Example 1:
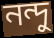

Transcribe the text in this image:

নন্দু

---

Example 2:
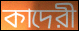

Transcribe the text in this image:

কাদেরী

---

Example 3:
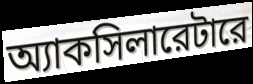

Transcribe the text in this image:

অ্যাকসিলারেটারে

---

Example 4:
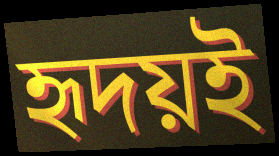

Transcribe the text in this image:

হৃদয়ই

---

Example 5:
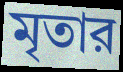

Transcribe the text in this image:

মৃতার